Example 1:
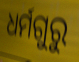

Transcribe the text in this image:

ଧର୍ମଗୁରୁ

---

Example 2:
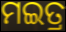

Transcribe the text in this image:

ମଇତ୍ର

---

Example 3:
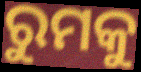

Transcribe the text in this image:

ରୁମକୁ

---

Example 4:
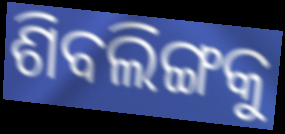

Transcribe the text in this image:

ଶିବଲିଙ୍ଗକୁ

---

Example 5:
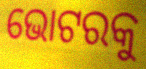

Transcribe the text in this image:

ଭୋଟରକୁ